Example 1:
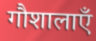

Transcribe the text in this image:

गौशालाएँ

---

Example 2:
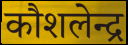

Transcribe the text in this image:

कौशलेन्द्र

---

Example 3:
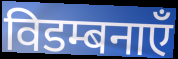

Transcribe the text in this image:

विडम्बनाएँ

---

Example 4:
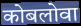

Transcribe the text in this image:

कोबलोवा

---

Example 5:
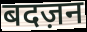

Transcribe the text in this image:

बदज़न